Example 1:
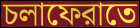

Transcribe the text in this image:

চলাফেরাতে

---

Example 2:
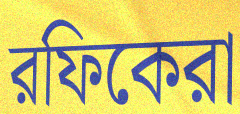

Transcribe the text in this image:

রফিকেরা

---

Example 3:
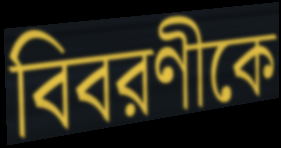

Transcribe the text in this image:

বিবরণীকে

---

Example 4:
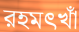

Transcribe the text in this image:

রহমৎখাঁ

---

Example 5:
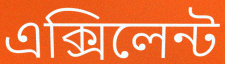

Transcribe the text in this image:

এক্সিলেন্ট